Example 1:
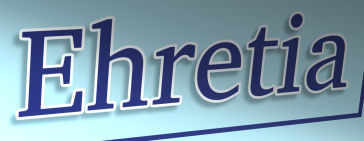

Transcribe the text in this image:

Ehretia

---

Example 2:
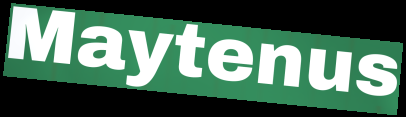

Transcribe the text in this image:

Maytenus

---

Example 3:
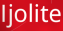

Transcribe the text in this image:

Ijolite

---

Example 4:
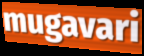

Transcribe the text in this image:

mugavari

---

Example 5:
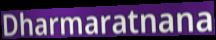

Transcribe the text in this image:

Dharmaratnana